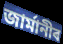
জাৰ্মানীৰ